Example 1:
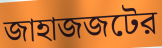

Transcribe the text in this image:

জাহাজজটের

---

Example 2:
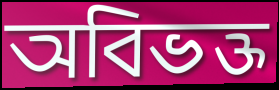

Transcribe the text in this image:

অবিভক্ত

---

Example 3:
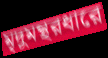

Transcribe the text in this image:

মৃদুমন্থরধারে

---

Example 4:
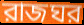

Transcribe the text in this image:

রাজঘর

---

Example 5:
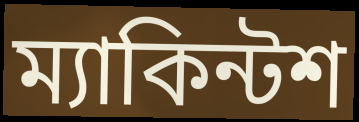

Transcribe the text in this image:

ম্যাকিন্টশ